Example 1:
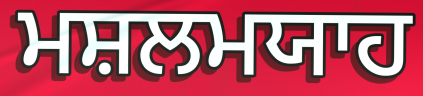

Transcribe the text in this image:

ਮਸ਼ਲਮਯਾਹ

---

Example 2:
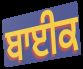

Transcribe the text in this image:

ਬਾਈਕ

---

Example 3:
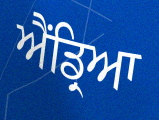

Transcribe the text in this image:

ਐਂਡ੍ਰਿਆ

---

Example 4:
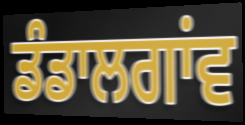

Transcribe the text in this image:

ਡੰਡਾਲਗਾਂਵ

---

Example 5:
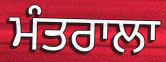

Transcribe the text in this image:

ਮੰਤਰਾਲਾ